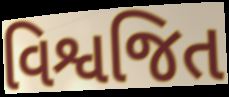
વિશ્વજિત